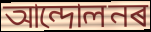
আন্দোলনৰ